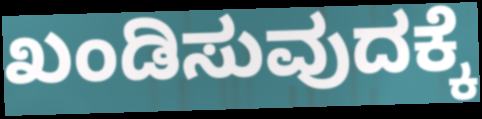
ಖಂಡಿಸುವುದಕ್ಕೆ